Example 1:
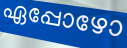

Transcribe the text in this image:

ഏപ്പോഴോ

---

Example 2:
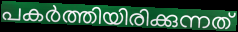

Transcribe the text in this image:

പകർത്തിയിരിക്കുന്നത്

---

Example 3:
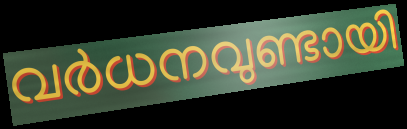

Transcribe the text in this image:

വർധനവുണ്ടായി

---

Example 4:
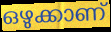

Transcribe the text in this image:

ഒഴുക്കാണ്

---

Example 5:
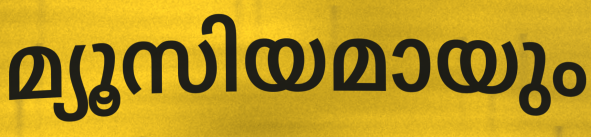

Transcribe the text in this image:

മ്യൂസിയമായും